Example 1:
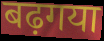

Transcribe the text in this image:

बढ़गया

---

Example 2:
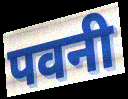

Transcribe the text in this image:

पवनी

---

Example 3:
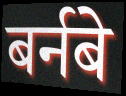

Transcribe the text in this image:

बर्नबे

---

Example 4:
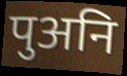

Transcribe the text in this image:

पुअनि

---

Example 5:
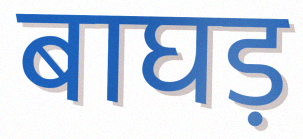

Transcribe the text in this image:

बाघड़